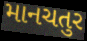
માનચતુર